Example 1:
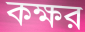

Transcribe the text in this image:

কক্ষর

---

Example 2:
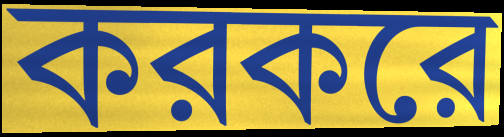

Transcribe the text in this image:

করকরে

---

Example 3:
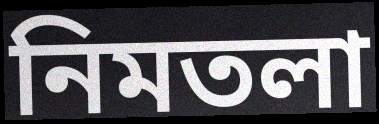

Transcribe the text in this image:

নিমতলা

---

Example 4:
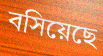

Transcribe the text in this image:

বসিয়েছে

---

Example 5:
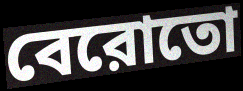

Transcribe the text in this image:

বেরোতো